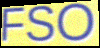
FSO